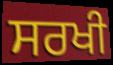
ਸਰਖੀ